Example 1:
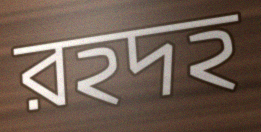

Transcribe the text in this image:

রহদহ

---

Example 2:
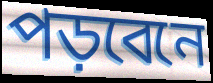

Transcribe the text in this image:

পড়বেনে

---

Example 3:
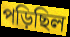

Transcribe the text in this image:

পড়িছিল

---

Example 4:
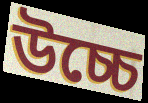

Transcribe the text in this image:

উচ্চে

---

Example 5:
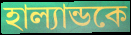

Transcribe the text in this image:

হাল্যান্ডকে